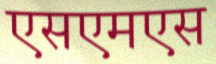
एसएमएस